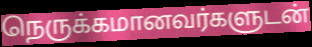
நெருக்கமானவர்களுடன்